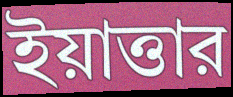
ইয়াত্তার